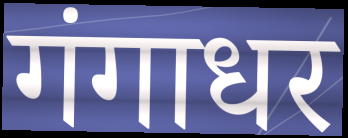
गंगाधर